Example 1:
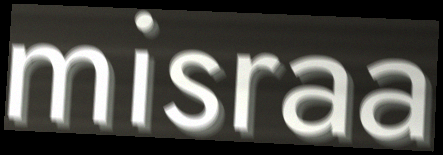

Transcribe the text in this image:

misraa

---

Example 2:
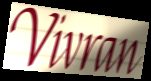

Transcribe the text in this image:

Vivran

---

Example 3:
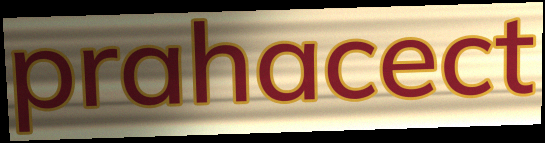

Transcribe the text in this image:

prahacect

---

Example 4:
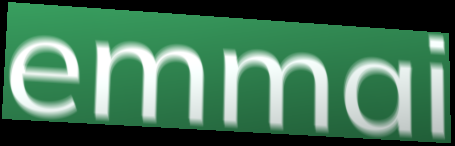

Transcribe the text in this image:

emmai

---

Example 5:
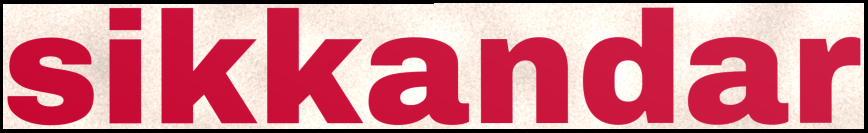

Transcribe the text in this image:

sikkandar